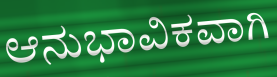
ಆನುಭಾವಿಕವಾಗಿ